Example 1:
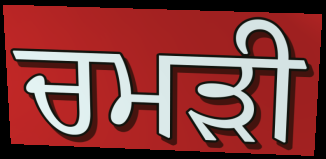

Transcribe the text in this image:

ਚਮਡ਼ੀ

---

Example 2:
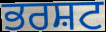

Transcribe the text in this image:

ਭਰਸ਼ਟ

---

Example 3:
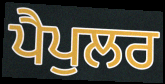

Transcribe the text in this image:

ਪੈਪੁਲਰ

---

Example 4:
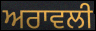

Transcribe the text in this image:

ਅਰਾਵਲੀ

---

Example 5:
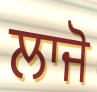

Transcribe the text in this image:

ਲਾਜੋ